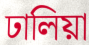
ঢালিয়া